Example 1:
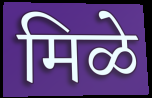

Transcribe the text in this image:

मिळे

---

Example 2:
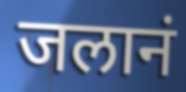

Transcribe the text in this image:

जलानं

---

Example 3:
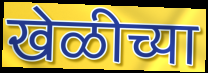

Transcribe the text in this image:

खेळीच्या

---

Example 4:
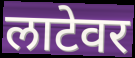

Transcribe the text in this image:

लाटेवर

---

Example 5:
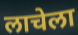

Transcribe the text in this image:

लाचेला